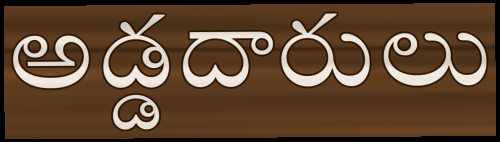
అడ్డదారులు